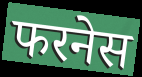
फरनेस